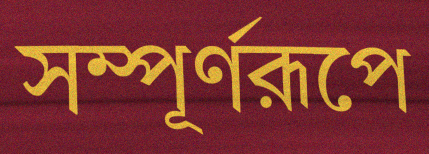
সম্পূর্ণরূপে